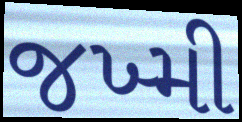
જખ્મી